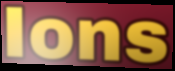
Ions